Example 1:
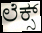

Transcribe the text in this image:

ಲೆಕ್ಸ್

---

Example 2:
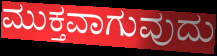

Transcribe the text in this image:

ಮುಕ್ತವಾಗುವುದು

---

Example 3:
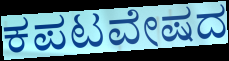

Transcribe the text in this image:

ಕಪಟವೇಷದ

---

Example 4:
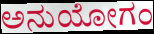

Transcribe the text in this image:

ಅನುಯೋಗಂ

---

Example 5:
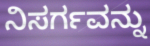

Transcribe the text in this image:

ನಿಸರ್ಗವನ್ನು